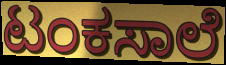
ಟಂಕಸಾಲೆ